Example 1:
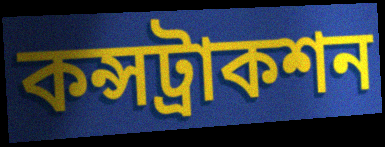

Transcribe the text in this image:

কন্সট্রাকশন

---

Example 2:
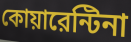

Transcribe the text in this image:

কোয়ারেন্টিনা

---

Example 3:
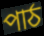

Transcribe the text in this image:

পাঠ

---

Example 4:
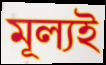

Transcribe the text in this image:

মূল্যই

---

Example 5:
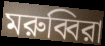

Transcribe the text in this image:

মরুব্বিরা